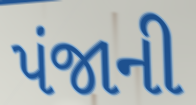
પંજાની